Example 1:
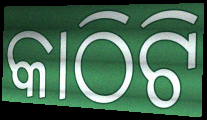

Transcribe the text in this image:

କାଠିଟି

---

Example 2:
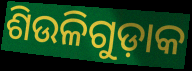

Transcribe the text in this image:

ଶିଉଳିଗୁଡ଼ାକ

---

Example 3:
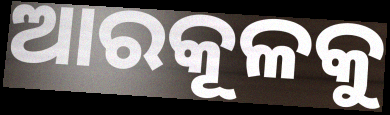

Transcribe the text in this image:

ଆରକୂଳକୁ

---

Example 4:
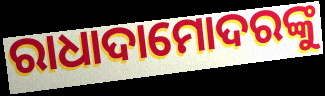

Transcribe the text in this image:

ରାଧାଦାମୋଦରଙ୍କୁ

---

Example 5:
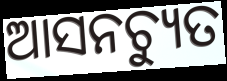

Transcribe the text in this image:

ଆସନଚ୍ୟୁତ